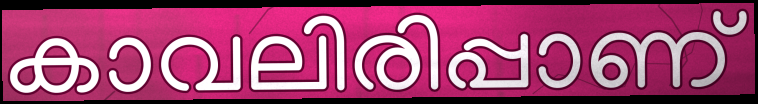
കാവലിരിപ്പാണ്